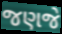
જણજે